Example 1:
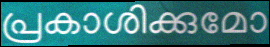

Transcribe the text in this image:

പ്രകാശിക്കുമോ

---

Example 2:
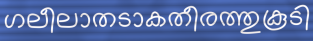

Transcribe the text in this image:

ഗലീലാതടാകതീരത്തുകൂടി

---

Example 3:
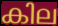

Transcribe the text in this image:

കില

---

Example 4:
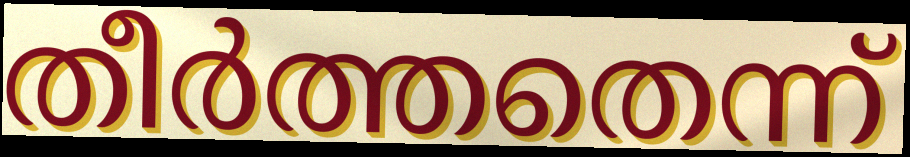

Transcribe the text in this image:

തീർത്തതെന്ന്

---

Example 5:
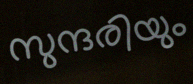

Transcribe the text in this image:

സുന്ദരിയും